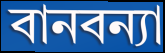
বানবন্যা